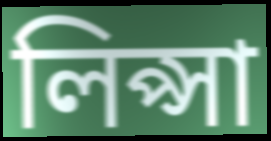
লিপ্সা